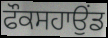
ਫੌਕਸਹਾਉਂਡ